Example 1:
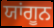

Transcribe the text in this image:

ਯਾਂਗੂਨ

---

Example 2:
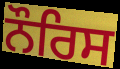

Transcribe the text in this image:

ਨੌਰਿਸ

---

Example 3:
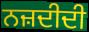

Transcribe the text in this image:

ਨਜ਼ਦੀਦੀ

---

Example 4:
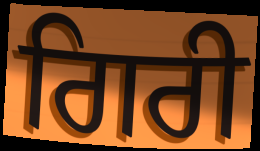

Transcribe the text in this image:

ਗਿਰੀ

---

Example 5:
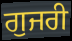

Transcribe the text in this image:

ਗੁਜਰੀ